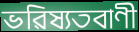
ভৱিষ্যতবাণী